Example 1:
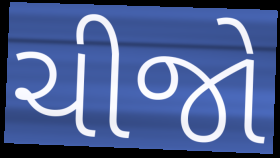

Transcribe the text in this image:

ચીજો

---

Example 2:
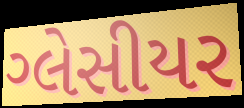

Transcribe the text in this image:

ગ્લેસીયર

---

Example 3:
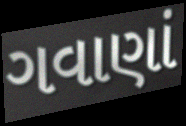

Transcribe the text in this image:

ગવાણાં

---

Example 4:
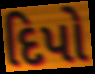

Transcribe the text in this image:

દિપો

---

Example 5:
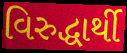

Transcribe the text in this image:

વિરુદ્ધાર્થી